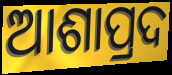
ଆଶାପ୍ରଦ